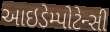
આઇડેમ્પોટેન્સી